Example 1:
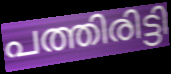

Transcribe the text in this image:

പത്തിരിട്ടി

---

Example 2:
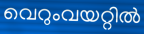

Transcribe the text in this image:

വെറുംവയറ്റിൽ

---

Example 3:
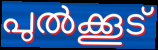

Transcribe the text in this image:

പുൽക്കൂട്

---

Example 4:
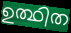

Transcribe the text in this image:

ഉത്ഥിത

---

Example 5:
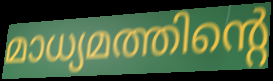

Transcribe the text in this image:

മാധ്യമത്തിന്റെ